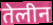
तेलीन